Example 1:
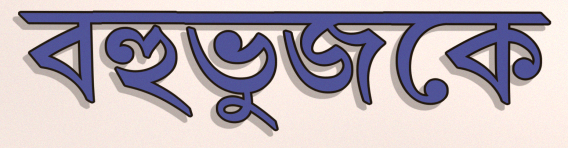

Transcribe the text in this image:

বহুভুজকে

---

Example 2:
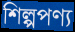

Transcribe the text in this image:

শিল্পপণ্য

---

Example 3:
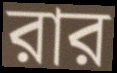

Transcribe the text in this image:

রার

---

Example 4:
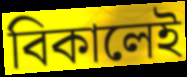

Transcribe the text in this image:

বিকালেই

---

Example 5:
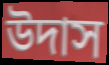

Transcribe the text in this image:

উদাস